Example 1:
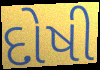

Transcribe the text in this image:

દોષી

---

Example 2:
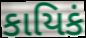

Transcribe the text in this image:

કાયિકં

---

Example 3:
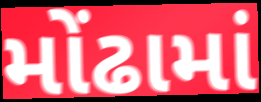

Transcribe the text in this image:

મોંઢામાં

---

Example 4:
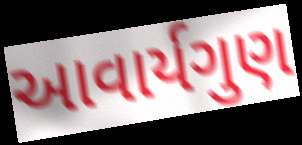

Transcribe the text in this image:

આવાર્યગુણ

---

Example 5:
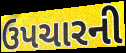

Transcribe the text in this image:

ઉપચારની